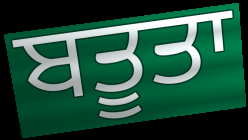
ਬਤੂਤਾ